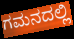
ಗಮನದಲ್ಲಿ